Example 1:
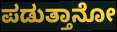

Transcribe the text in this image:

ಪಡುತ್ತಾನೋ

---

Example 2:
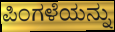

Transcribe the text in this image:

ಪಿಂಗಳೆಯನ್ನು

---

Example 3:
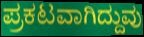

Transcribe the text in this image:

ಪ್ರಕಟವಾಗಿದ್ದುವು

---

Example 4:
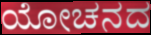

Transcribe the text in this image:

ಯೋಚನದ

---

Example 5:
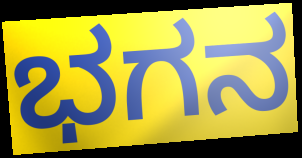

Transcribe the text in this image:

ಭಗನ